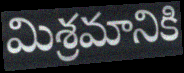
మిశ్రమానికి